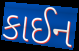
કાઈન